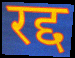
रद्द